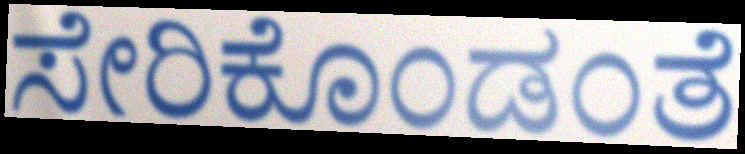
ಸೇರಿಕೊಂಡಂತೆ